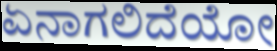
ಏನಾಗಲಿದೆಯೋ